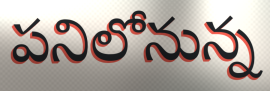
పనిలోనున్న